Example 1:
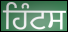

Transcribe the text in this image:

ਹਿੰਟਸ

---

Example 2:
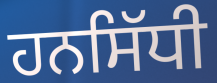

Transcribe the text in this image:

ਹਨਸਿੱਧੀ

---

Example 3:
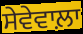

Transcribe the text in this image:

ਸੇਵੇਵਾਲ਼ਾ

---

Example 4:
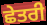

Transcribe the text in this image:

ਛੇਤਰੀ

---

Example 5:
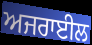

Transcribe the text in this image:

ਅਜਰਾਈਲ